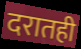
दरातही